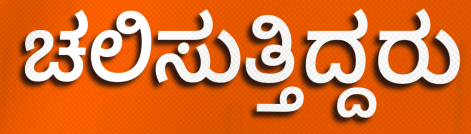
ಚಲಿಸುತ್ತಿದ್ದರು